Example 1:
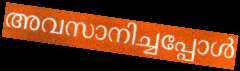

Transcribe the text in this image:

അവസാനിച്ചപ്പോൾ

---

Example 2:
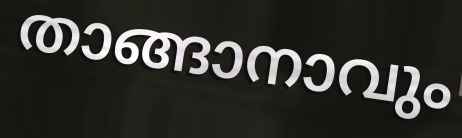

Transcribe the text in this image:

താങ്ങാനാവും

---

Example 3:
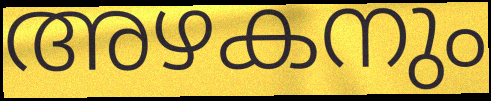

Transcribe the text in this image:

അഴകനും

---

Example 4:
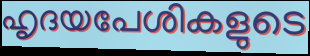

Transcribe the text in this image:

ഹൃദയപേശികളുടെ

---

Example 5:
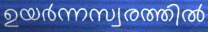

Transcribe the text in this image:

ഉയർന്നസ്വരത്തിൽ